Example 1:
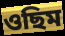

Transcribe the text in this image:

ওছিম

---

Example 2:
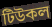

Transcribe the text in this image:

টিউকল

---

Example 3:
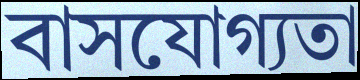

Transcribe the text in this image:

বাসযোগ্যতা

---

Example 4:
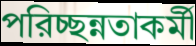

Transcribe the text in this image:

পরিচ্ছন্নতাকর্মী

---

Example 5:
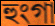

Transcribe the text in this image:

হুংগা